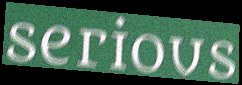
serious